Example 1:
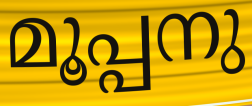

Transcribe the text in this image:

മൂപ്പനു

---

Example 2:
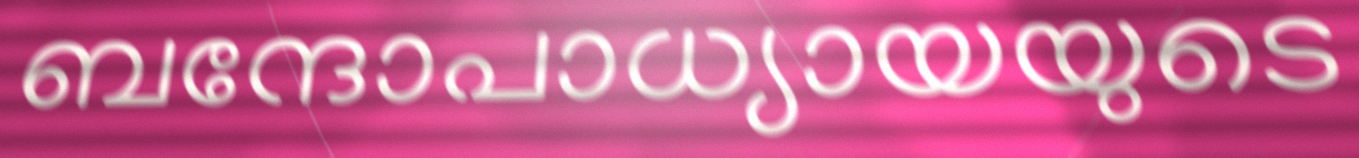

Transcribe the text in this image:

ബന്ദോപാധ്യായയുടെ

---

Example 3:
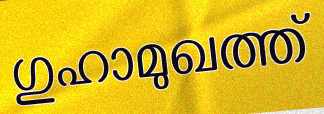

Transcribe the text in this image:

ഗുഹാമുഖത്ത്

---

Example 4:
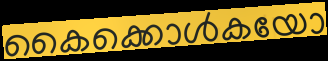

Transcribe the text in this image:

കൈക്കൊൾകയോ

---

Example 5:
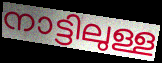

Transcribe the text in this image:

നാട്ടിലുള്ള